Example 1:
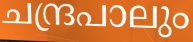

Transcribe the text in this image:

ചന്ദ്രപാലും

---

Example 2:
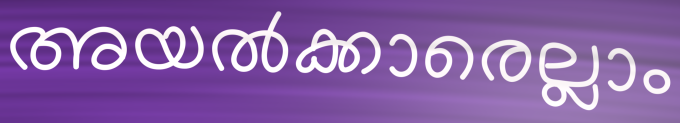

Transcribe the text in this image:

അയൽക്കാരെല്ലാം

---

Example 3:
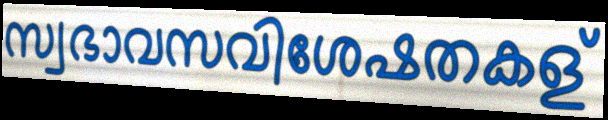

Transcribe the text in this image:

സ്വഭാവസവിശേഷതകള്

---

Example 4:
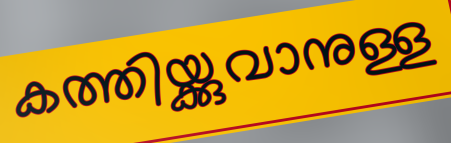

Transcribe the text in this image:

കത്തിയ്ക്കുവാനുള്ള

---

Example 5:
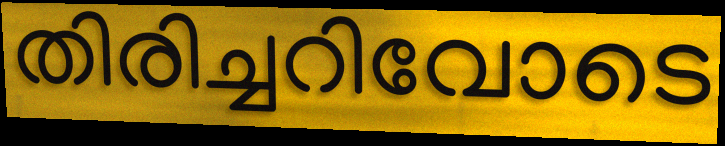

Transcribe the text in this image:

തിരിച്ചറിവോടെ